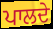
ਪਾਲਦੇ